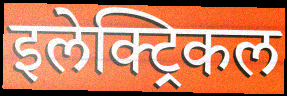
इलेक्ट्रिकल